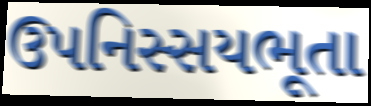
ઉપનિસ્સયભૂતા